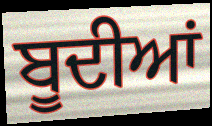
ਬੂਦੀਆਂ